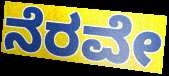
ನೆರವೇ